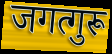
जगत्गुरू